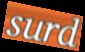
surd